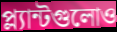
প্ল্যান্টগুলোও